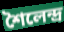
শৈলেন্দ্ৰ